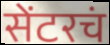
सेंटरचं